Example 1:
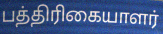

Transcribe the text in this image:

பத்திரிகையாளர்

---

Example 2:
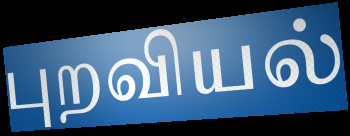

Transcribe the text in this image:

புறவியல்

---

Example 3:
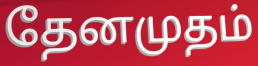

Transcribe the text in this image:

தேனமுதம்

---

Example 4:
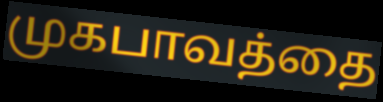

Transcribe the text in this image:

முகபாவத்தை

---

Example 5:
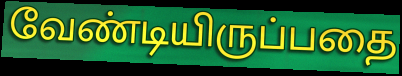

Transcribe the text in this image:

வேண்டியிருப்பதை